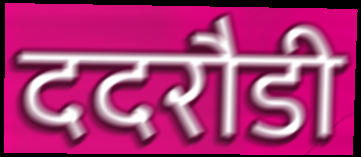
ददरौडी